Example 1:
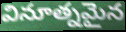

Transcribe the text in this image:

వినూత్నమైన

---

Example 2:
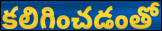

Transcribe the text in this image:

కలిగించడంతో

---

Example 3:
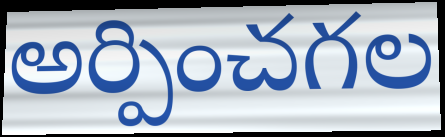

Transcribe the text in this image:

అర్పించగల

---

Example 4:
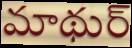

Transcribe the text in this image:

మాథుర్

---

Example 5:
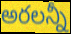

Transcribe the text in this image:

అరలన్నీ